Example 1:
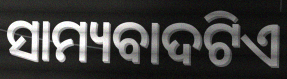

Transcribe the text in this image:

ସାମ୍ୟବାଦଟିଏ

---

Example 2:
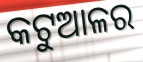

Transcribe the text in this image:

କଟୁଆଳର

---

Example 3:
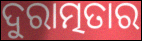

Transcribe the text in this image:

ଦୁରାତ୍ମତାର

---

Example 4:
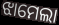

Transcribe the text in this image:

ଝାମେଲା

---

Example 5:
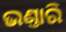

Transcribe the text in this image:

ଭଣ୍ତାରି